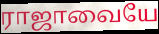
ராஜாவையே